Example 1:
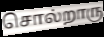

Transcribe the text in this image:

சொல்றாரு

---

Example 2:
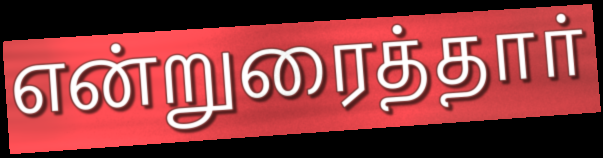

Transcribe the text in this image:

என்றுரைத்தார்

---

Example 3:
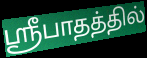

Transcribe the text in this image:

ஸ்ரீபாதத்தில்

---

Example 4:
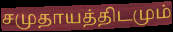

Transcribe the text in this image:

சமுதாயத்திடமும்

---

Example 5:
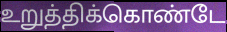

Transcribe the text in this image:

உறுத்திக்கொண்டே